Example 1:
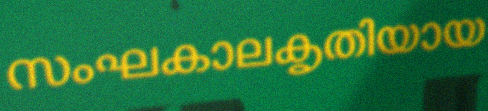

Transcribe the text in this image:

സംഘകാലകൃതിയായ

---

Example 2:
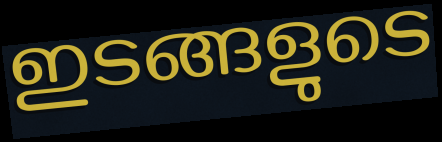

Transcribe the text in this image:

ഇടങ്ങളുടെ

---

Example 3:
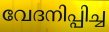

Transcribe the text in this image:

വേദനിപ്പിച്ച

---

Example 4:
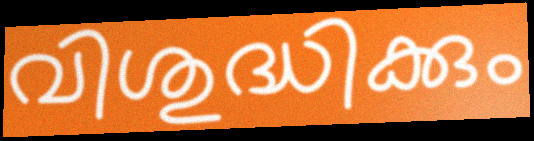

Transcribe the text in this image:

വിശുദ്ധിക്കും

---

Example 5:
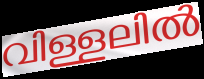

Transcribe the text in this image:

വിള്ളലിൽ